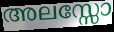
അലസ്സോ